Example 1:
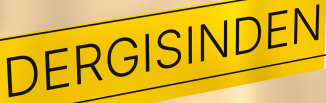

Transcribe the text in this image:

DERGISINDEN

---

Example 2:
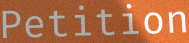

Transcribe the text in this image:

Petition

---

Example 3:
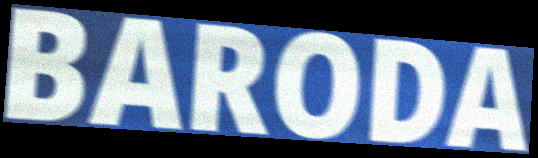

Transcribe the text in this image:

BARODA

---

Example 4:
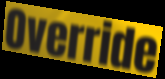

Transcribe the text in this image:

Override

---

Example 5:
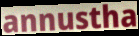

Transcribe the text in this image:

annustha